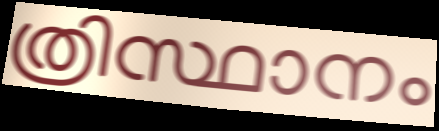
ത്രിസ്ഥാനം